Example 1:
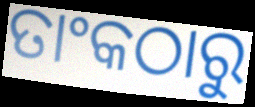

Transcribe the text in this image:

ତାଂକଠାରୁ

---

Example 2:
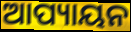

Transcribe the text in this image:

ଆପ୍ୟାୟନ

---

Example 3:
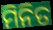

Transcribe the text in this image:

ମିନିତ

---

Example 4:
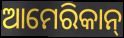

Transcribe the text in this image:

ଆମେରିକାନ୍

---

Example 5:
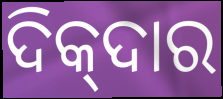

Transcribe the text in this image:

ଦିକ୍‍ଦାର